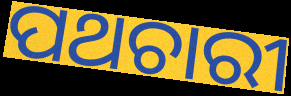
ପଥଚାରୀ